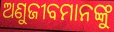
ଅଣୁଜୀବମାନଙ୍କୁ